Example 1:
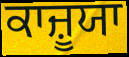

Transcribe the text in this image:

ਕਾਜ਼ੂਯਾ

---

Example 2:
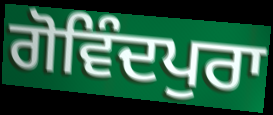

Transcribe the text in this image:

ਗੋਵਿੰਦਪੁਰਾ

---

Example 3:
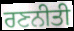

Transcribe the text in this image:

ਰਣਨੀਤੀ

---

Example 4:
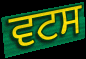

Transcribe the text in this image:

ਵਟਸ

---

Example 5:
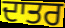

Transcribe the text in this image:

ਦਾਤਰ